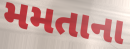
મમતાના